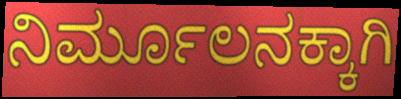
ನಿರ್ಮೂಲನಕ್ಕಾಗಿ